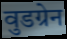
वुडग्रेन